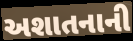
અશાતનાની